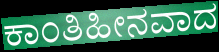
ಕಾಂತಿಹೀನವಾದ